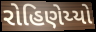
રોહિણેય્યો